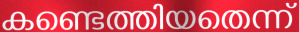
കണ്ടെത്തിയതെന്ന്